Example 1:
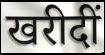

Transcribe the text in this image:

खरीदीं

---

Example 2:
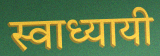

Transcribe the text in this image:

स्वाध्यायी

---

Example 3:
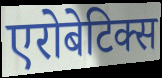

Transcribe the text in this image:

एरोबेटिक्स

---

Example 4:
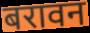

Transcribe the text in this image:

बरावन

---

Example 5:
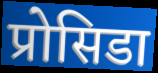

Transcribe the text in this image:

प्रोसिडा